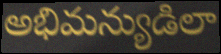
అభిమన్యుడిలా